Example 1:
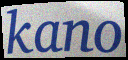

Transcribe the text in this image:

kano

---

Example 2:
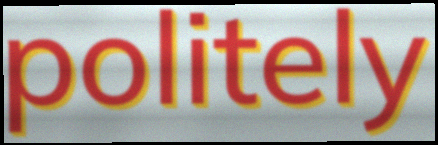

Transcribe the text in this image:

politely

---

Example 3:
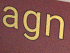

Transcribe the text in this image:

agn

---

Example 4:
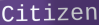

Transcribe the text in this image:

Citizen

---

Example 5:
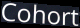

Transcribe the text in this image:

Cohort